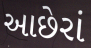
આછેરાં